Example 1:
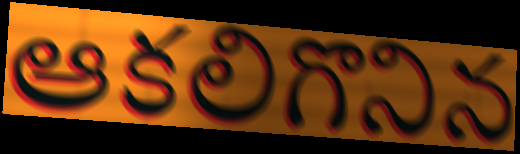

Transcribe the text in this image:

ఆకలిగొనిన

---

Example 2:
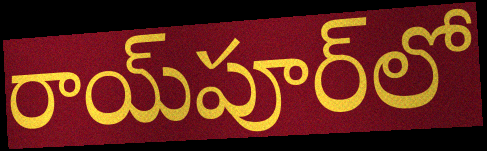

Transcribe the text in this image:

రాయ్‌పూర్‌లో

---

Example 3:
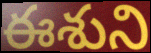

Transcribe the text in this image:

ఈశుని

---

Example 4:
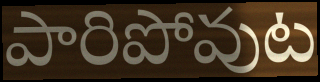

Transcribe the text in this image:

పారిపోవుట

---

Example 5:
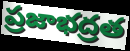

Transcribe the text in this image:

ప్రజాభద్రత